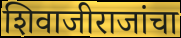
शिवाजीराजांचा